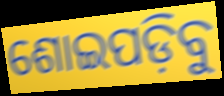
ଶୋଇପଡ଼ିବୁ